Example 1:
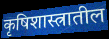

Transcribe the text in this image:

कृषिशास्त्रातील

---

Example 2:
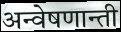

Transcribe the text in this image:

अन्वेषणान्ती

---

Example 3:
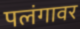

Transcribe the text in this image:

पलंगावर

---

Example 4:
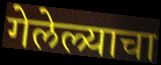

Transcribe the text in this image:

गेलेल्याचा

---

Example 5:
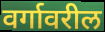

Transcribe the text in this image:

वर्गावरील